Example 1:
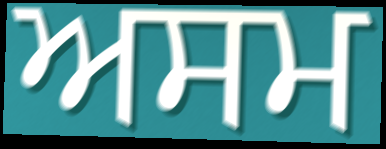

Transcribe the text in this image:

ਅਸਮ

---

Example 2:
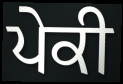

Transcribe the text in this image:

ਪੇਕੀ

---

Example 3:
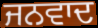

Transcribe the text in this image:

ਜਨਵਾਦ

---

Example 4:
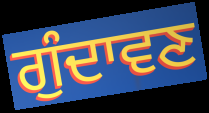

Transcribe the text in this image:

ਗੁੰਦਾਵਣ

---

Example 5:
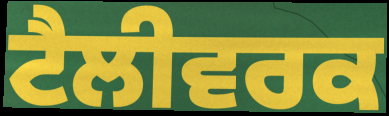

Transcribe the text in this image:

ਟੈਲੀਵਰਕ